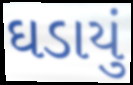
ઘડાયું